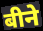
बीने